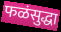
फळंसुद्धा